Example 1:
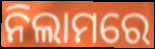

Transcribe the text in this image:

ନିଲାମରେ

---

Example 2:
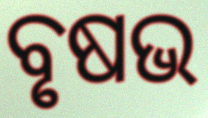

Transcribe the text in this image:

ବୃଷଭ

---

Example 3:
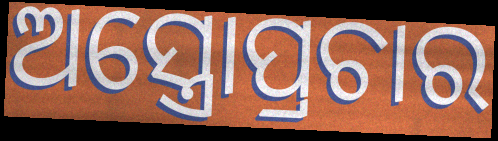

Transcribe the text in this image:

ଅସ୍ତ୍ରୋପ୍ରଚାର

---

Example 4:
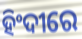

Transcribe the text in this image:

ହିଂଦୀରେ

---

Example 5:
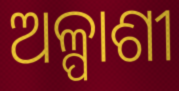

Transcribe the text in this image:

ଅଳ୍ପାଶୀ